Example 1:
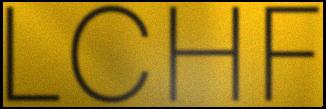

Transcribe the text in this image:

LCHF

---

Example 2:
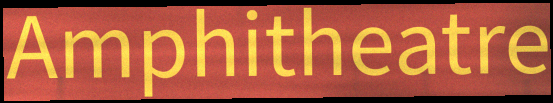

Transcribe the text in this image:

Amphitheatre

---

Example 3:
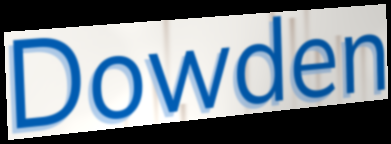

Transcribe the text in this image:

Dowden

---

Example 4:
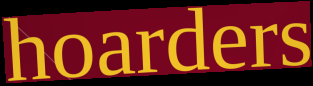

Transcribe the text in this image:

hoarders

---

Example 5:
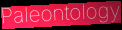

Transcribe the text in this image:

Paleontology